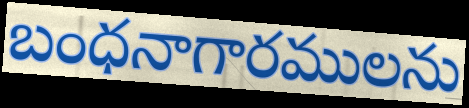
బంధనాగారములను